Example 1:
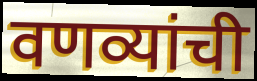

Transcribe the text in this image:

वणव्यांची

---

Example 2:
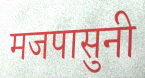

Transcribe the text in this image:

मजपासुनी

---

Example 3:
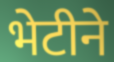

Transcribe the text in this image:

भेटीने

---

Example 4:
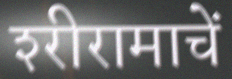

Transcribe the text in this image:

श्रीरामाचें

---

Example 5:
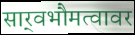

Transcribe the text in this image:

सार्वभौमत्वावर